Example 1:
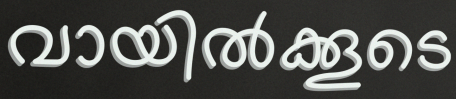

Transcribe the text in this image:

വായിൽക്കൂടെ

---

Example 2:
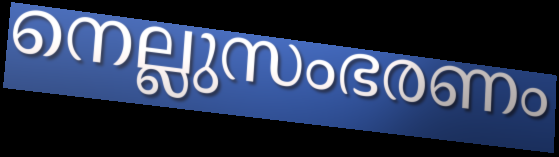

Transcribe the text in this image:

നെല്ലുസംഭരണം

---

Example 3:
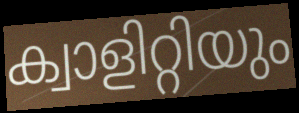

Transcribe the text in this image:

ക്വാളിറ്റിയും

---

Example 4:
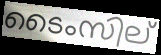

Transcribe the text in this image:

ടൈംസില്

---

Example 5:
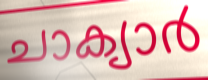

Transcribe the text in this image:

ചാക്യാർ